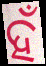
ହଁ